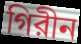
গিরীন